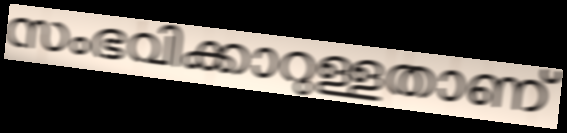
സംഭവിക്കാറുള്ളതാണ്